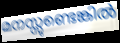
മനസ്സുണ്ടെങ്കിൽ